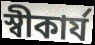
স্বীকার্য